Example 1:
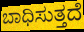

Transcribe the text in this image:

ಬಾಧಿಸುತ್ತದೆ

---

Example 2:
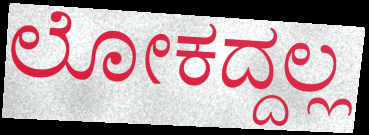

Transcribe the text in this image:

ಲೋಕದ್ದಲ್ಲ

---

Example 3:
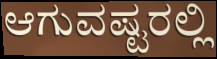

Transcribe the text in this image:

ಆಗುವಷ್ಟರಲ್ಲಿ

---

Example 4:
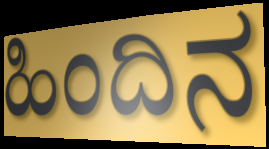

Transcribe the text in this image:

ಹಿಂದಿನ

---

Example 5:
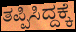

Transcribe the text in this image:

ತಪ್ಪಿಸಿದ್ದಕ್ಕೆ